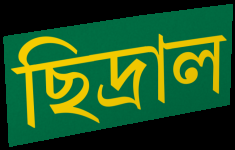
ছিদ্রাল